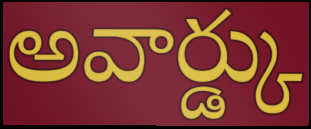
అవార్డ్కు